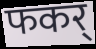
फकर्